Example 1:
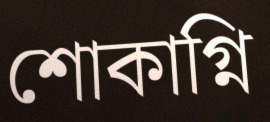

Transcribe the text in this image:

শোকাগ্নি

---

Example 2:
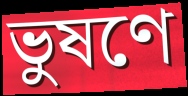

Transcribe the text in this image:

ভুষণে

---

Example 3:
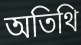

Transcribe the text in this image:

অতিথি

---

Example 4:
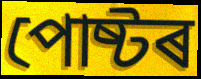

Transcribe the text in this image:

পোষ্টৰ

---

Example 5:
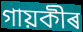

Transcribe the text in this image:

গায়কীৰ